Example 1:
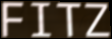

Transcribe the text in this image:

FITZ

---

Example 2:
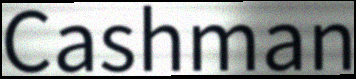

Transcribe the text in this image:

Cashman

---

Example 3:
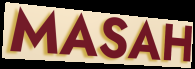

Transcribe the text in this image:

MASAH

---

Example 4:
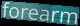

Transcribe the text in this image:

forearm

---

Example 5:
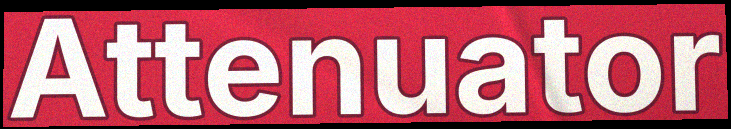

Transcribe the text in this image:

Attenuator